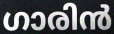
ഗാരിൻ